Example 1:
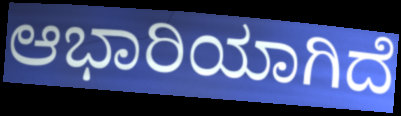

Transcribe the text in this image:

ಆಭಾರಿಯಾಗಿದೆ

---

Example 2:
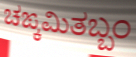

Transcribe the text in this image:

ಚಙ್ಕಮಿತಬ್ಬಂ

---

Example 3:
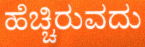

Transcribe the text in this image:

ಹೆಚ್ಚಿರುವದು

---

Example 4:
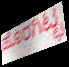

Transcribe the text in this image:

ಹೊರಗಿಟ್ಟ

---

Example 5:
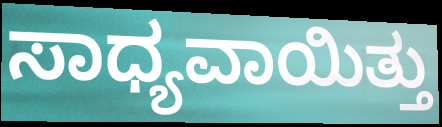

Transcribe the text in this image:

ಸಾಧ್ಯವಾಯಿತ್ತು